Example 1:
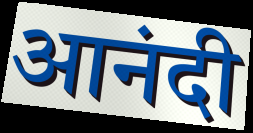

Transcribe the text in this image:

आनंदी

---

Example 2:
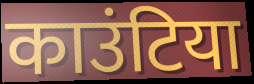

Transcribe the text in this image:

काउंटिया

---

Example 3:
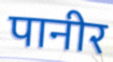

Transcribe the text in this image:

पानीर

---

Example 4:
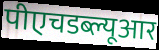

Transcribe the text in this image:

पीएचडब्ल्यूआर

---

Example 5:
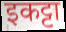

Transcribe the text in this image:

इकट्टा